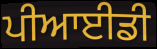
ਪੀਆਈਡੀ